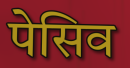
पेसिव